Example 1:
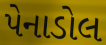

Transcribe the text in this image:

પેનાડોલ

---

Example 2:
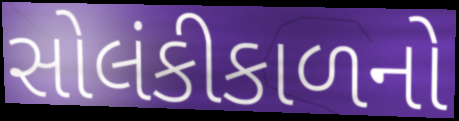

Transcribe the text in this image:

સોલંકીકાળનો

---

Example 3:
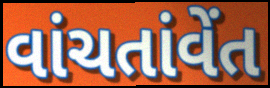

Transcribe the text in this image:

વાંચતાંવેંત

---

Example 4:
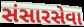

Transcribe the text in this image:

સંસારસેવા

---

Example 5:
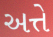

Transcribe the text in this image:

અત્તે